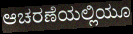
ಆಚರಣೆಯಲ್ಲಿಯೂ